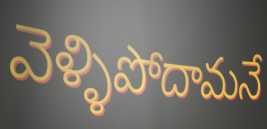
వెళ్ళిపోదామనే